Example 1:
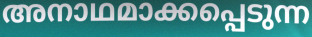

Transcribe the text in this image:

അനാഥമാക്കപ്പെടുന്ന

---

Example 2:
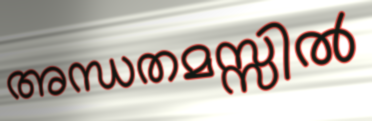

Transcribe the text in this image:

അന്ധതമസ്സിൽ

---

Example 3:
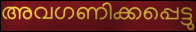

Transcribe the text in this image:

അവഗണിക്കപ്പെട്ടു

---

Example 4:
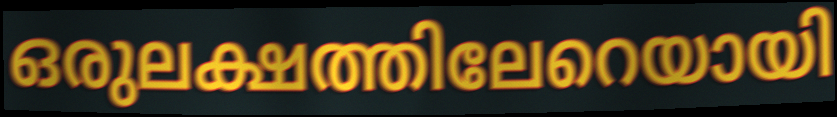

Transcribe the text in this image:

ഒരുലക്ഷത്തിലേറെയായി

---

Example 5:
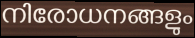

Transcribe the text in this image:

നിരോധനങ്ങളും